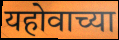
यहोवाच्या